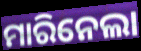
ମାରିନେଲା